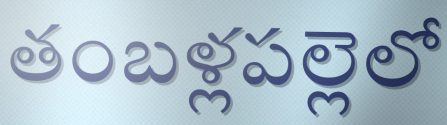
తంబళ్లపల్లెలో